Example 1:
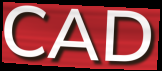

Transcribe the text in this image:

CAD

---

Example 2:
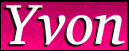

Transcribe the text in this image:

Yvon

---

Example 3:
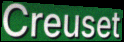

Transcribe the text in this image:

Creuset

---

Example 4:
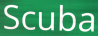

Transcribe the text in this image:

Scuba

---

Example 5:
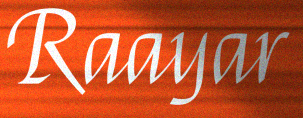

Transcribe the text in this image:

Raayar